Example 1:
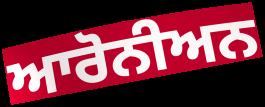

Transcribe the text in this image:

ਆਰੋਨੀਅਨ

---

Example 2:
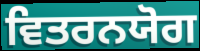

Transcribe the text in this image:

ਵਿਤਰਨਯੋਗ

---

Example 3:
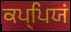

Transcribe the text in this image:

ਕਪ੍ਪਿਯਂ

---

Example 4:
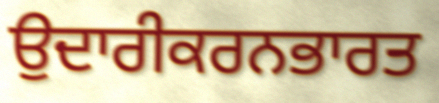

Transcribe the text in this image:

ਉਦਾਰੀਕਰਨਭਾਰਤ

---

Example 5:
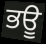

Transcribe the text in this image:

ਭਊ